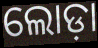
ଲୋଡ଼ା